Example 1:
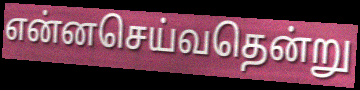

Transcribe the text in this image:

என்னசெய்வதென்று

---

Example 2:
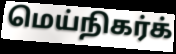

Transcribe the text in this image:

மெய்நிகர்க்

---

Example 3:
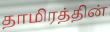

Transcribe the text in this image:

தாமிரத்தின்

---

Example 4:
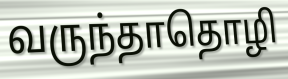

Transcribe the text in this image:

வருந்தாதொழி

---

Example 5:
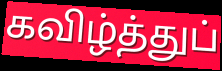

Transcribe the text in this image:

கவிழ்த்துப்